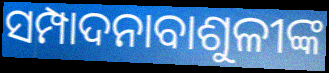
ସମ୍ପାଦନାବାଶୁଳୀଙ୍କ